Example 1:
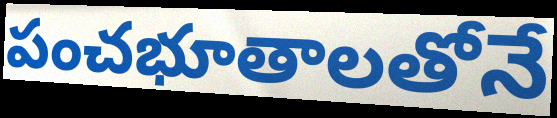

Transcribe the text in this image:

పంచభూతాలతోనే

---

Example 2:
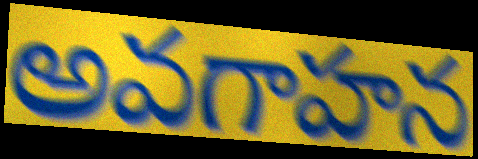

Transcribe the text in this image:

అవగాహన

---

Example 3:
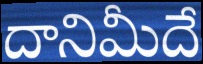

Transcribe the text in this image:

దానిమీదే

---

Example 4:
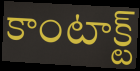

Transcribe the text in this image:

కాంటాక్ట్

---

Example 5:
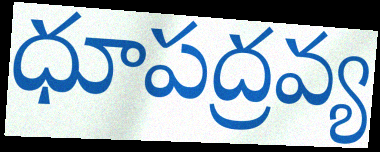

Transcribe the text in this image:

ధూపద్రవ్య